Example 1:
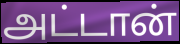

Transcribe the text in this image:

அட்டான்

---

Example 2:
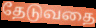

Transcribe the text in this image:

தேடுவதை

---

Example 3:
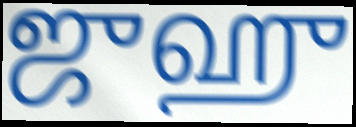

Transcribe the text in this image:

ஜுஹு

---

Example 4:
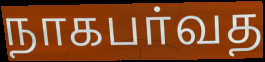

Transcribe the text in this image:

நாகபர்வத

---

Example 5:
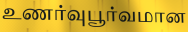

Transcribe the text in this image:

உணர்வுபூர்வமான